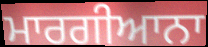
ਮਾਰਗੀਆਨਾ